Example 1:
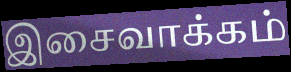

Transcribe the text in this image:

இசைவாக்கம்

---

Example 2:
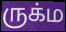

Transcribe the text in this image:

ருக்ம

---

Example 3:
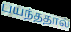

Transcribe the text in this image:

பயந்ததால்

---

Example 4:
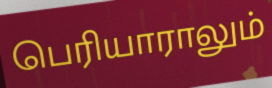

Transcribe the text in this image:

பெரியாராலும்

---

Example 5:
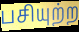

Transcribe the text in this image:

பசியுற்ற